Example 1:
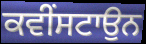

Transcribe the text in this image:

ਕਵੀਂਸਟਾਉਨ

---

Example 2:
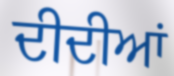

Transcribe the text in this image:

ਦੀਦੀਆਂ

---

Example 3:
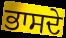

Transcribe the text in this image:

ਭਾਸਦੇ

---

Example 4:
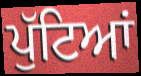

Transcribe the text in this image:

ਪੁੱਟਿਆਂ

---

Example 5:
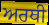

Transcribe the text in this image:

ਅਰਥੀ